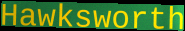
Hawksworth